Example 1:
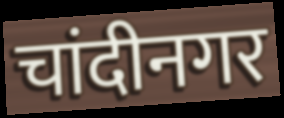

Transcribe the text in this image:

चांदीनगर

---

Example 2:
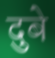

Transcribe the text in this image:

दुबे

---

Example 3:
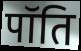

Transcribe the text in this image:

पॉति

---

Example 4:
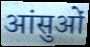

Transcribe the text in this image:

आंसुओं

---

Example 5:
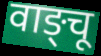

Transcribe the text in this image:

वाङ्चू